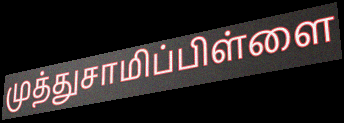
முத்துசாமிப்பிள்ளை